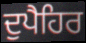
ਦੁਪੈਹਿਰ